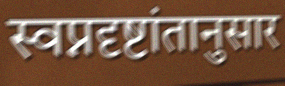
स्वप्नदृष्टांतानुसार